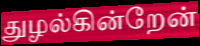
துழல்கின்றேன்